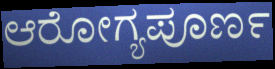
ಆರೋಗ್ಯಪೂರ್ಣ